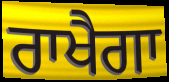
ਰਾਖੈਗਾ